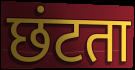
छंटता